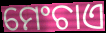
ମେଂଚାଏ